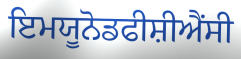
ਇਮਯੂਨੋਡਫੀਸ਼ੀਐਂਸੀ